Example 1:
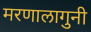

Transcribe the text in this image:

मरणालागुनी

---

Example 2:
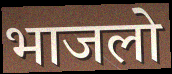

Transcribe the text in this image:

भाजलो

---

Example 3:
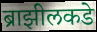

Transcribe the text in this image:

ब्राझीलकडे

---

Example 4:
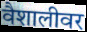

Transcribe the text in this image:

वैशालीवर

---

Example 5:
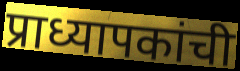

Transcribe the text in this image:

प्राध्यापकांची